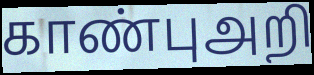
காண்புஅறி